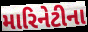
મારિનેટીના